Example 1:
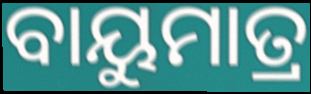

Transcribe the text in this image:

ବାୟୁମାତ୍ର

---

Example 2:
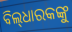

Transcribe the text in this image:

ବିଲ୍‌ଧାରକଙ୍କୁ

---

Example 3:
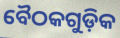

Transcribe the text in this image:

ବୈଠକଗୁଡ଼ିକ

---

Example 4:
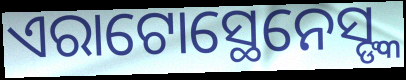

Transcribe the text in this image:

ଏରାଟୋସ୍ଥେନେସ୍ଙ୍କ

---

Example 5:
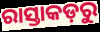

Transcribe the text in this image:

ରାସ୍ତାକଡ଼ରୁ